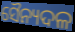
ସୈନ୍ୟଦଳ